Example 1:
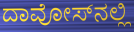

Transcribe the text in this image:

ದಾವೋಸ್‌ನಲ್ಲಿ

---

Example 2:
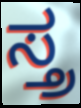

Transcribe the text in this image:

ಸ್ತ್ರ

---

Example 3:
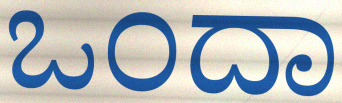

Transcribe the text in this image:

ಒಂದಾ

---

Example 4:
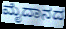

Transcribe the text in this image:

ಮೈದಾನದ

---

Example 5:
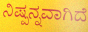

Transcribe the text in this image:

ನಿಷ್ಪನ್ನವಾಗಿದೆ